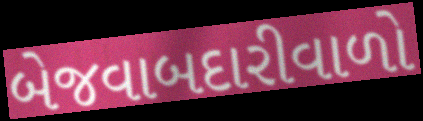
બેજવાબદારીવાળો